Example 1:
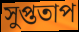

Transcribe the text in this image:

সুপ্ততাপ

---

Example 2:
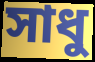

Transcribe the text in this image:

সাধু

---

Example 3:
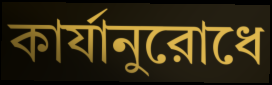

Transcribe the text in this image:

কার্যানুরোধে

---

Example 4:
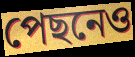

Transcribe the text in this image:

পেছনেও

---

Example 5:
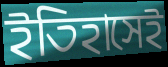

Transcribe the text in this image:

ইতিহাসেই